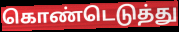
கொண்டெடுத்து